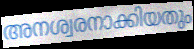
അനശ്വരനാക്കിയതും